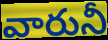
వారునీ